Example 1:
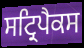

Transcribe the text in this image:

ਸਟ੍ਰਿਪੈਕਸ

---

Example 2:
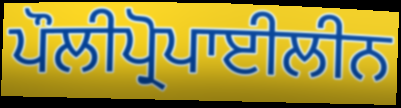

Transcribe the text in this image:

ਪੌਲੀਪ੍ਰੋਪਾਈਲੀਨ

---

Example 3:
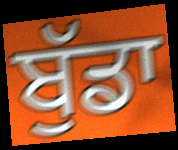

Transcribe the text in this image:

ਬੁੱਡਾ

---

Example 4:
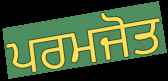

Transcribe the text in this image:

ਪਰਮਜੋਤ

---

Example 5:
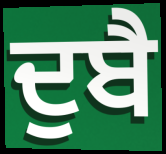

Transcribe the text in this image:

ਦੁਬੈ